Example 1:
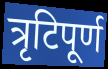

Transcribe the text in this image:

त्रृटिपूर्ण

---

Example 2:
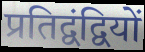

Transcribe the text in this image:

प्रतिद्वंद्वियों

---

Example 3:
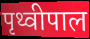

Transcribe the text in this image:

पृथ्वीपाल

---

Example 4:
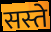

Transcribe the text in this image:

सस्‍ते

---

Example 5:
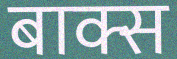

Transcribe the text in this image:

बाक्स